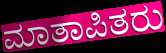
ಮಾತಾಪಿತರು